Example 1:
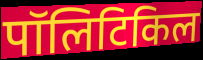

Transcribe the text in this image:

पॉलिटिकिल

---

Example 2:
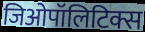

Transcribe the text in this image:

जिओपॉलिटिक्स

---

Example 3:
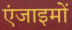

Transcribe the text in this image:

एंजाइमों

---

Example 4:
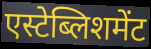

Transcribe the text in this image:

एस्टेब्लिशमेंट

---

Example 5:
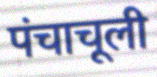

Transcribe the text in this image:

पंचाचूली